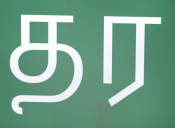
தர